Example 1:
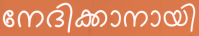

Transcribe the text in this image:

നേദിക്കാനായി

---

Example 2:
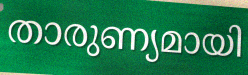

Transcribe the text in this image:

താരുണ്യമായി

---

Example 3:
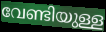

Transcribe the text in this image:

വേണ്ടിയുള്ള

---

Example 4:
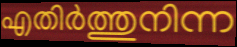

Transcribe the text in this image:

എതിർത്തുനിന്ന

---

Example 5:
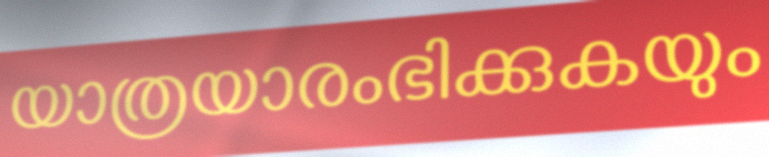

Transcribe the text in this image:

യാത്രയാരംഭിക്കുകയും